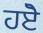
ਹਏੋ